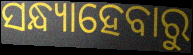
ସନ୍ଧ୍ୟାହେବାରୁ